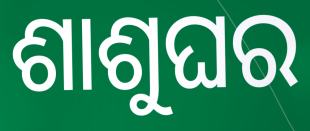
ଶାଶୁଘର